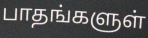
பாதங்களுள்